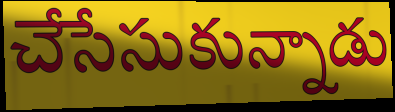
చేసేసుకున్నాడు